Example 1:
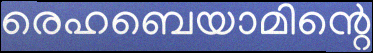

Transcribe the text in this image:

രെഹബെയാമിന്റെ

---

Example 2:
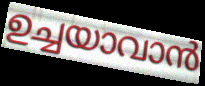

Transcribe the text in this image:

ഉച്ചയാവാൻ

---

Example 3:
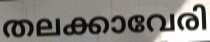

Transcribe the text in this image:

തലക്കാവേരി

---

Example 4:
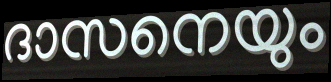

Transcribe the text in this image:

ദാസനെയും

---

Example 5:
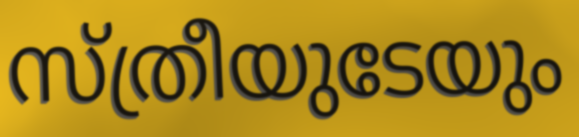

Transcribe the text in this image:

സ്ത്രീയുടേയും